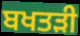
ਬਖਤੜੀ